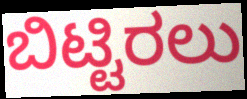
ಬಿಟ್ಟಿರಲು